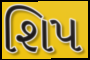
શિપ